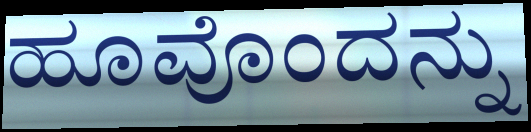
ಹೂವೊಂದನ್ನು